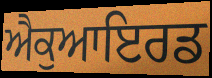
ਐਕੁਆਇਰਡ